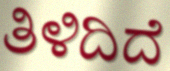
ತಿಳಿದಿದೆ